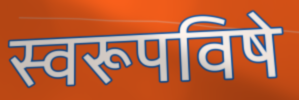
स्वरूपविषे